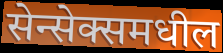
सेन्सेक्समधील